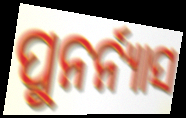
ପୁନର୍ନ୍ୟାସ